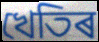
খেতিৰ